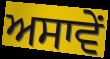
ਅਸਾਵੇਂ